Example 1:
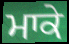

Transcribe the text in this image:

ਮਾਕੇ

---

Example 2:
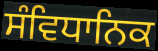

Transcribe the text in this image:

ਸੰਵਿਧਾਨਿਕ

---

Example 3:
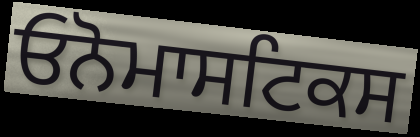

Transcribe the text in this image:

ਓਨੋਮਾਸਟਿਕਸ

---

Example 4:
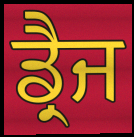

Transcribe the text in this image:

ਡ੍ਰੈਜ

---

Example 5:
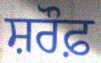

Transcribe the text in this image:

ਸ਼ਰੌਫ਼